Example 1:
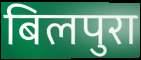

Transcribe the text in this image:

बिलपुरा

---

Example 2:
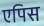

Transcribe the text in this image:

एपिस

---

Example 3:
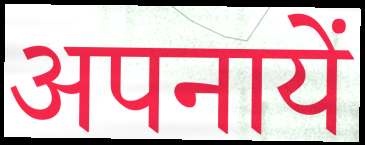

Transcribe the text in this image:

अपनायें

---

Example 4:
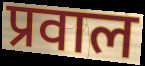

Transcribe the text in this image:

प्रवाल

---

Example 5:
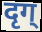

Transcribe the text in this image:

दृग्